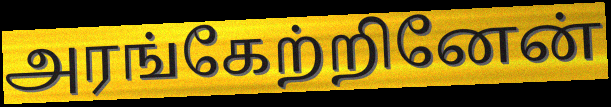
அரங்கேற்றினேன்